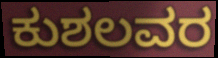
ಕುಶಲವರ